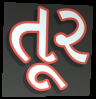
તૂર